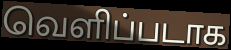
வெளிப்படாக